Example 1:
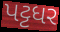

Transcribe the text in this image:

પટ્ટધર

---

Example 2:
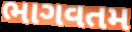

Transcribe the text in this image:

ભાગવતમ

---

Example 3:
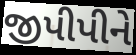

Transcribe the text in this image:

જીપીપીને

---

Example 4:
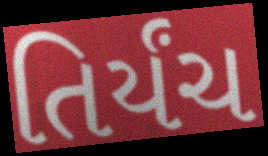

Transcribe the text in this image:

તિર્યંચ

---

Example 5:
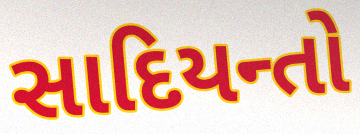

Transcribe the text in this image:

સાદિયન્તો